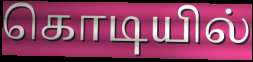
கொடியில்